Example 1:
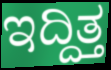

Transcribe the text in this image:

ಇದ್ದಿತ್ತ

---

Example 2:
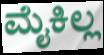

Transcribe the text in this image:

ಮೈಕಿಲ್ಲ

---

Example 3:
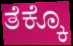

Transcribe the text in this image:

ತೆಕ್ಕೊ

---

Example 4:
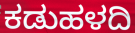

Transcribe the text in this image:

ಕಡುಹಳದಿ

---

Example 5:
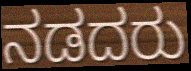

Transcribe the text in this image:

ನಡದರು